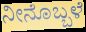
ನೀನೊಬ್ಬಳೆ